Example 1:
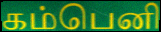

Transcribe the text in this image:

கம்பெனி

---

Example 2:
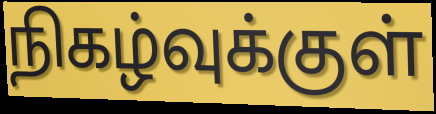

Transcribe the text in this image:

நிகழ்வுக்குள்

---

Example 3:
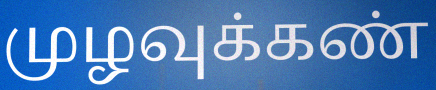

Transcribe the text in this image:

முழவுக்கண்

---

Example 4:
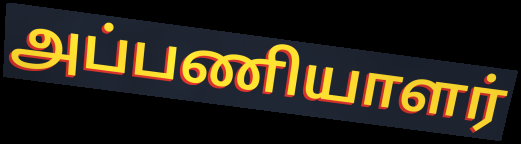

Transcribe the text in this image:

அப்பணியாளர்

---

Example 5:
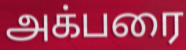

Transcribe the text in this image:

அக்பரை